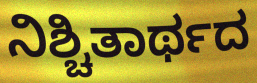
ನಿಶ್ಚಿತಾರ್ಥದ